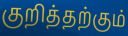
குறித்தற்கும்